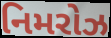
નિમરોઝ